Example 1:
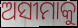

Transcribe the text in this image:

ଅସୀମାକୁ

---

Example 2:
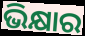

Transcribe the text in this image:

ଭିକ୍ଷାର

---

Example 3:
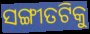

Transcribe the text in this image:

ସଙ୍ଗୀତଟିକୁ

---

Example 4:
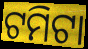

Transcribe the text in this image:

ଟମିଟା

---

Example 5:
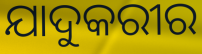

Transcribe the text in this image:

ଯାଦୁକରୀର